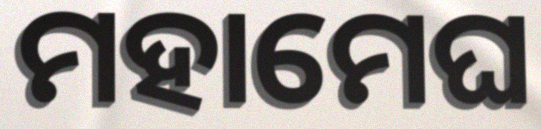
ମହାମେଘ